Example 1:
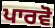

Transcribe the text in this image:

ਪਾਰਵੋ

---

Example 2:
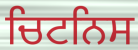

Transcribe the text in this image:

ਚਿਟਨਿਸ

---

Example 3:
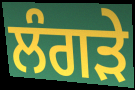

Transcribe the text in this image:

ਲੰਗੜੇ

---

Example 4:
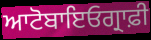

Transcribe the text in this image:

ਆਟੋਬਾਇਓਗ੍ਰਾਫ਼ੀ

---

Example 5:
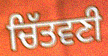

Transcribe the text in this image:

ਚਿੱਤਵਣੀ